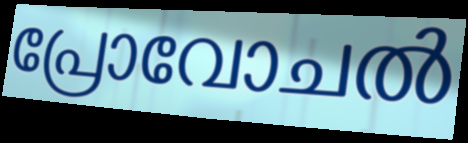
പ്രോവോചൽ